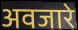
अवजारे